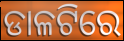
ଡାଳଟିରେ